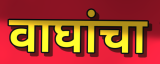
वाघांचा